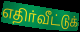
எதிர்வீட்டுக்